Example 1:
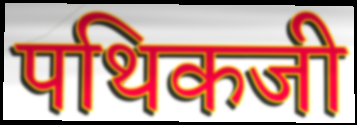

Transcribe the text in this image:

पथिकजी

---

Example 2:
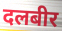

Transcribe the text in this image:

दलबीर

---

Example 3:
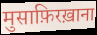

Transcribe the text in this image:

मुसाफ़िरख़ाना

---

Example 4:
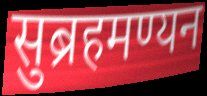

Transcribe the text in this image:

सुब्रहमण्यन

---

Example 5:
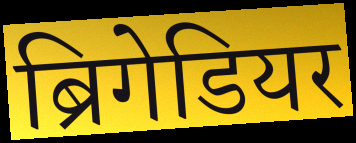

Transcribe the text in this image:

ब्रिगेडियर